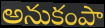
అనుకంపా